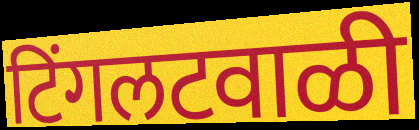
टिंगलटवाळी